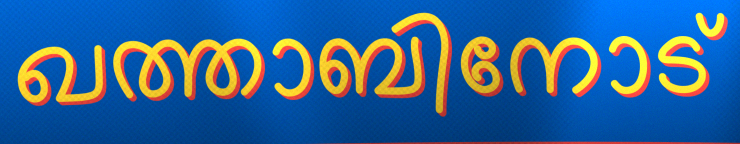
ഖത്താബിനോട്